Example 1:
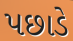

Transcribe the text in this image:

પછાડે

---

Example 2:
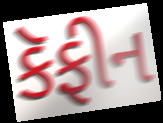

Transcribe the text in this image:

કૅફીન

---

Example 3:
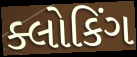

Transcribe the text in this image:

ક્લોકિંગ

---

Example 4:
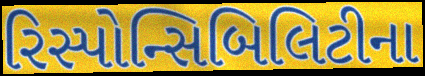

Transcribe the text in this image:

રિસ્પોન્સિબિલિટીના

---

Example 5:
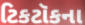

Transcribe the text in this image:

ટિકટૉકના